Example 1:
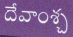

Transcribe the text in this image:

దేవాంశ్చ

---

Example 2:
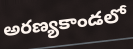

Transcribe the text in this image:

అరణ్యకాండలో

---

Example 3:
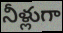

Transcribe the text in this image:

నీళ్లుగా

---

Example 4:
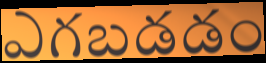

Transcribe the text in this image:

ఎగబడడం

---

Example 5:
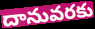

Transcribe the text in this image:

దానువరకు